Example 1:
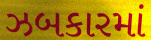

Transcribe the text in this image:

ઝબકારમાં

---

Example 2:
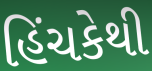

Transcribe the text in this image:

હિંચકેથી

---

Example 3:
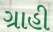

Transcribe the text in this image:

ગ્રાહી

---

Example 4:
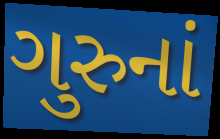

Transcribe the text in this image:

ગુરુનાં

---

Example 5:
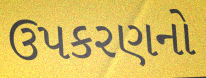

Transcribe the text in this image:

ઉપકરણનો